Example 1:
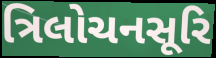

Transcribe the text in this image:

ત્રિલોચનસૂરિ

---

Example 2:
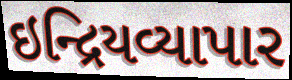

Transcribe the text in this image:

ઇન્દ્રિયવ્યાપાર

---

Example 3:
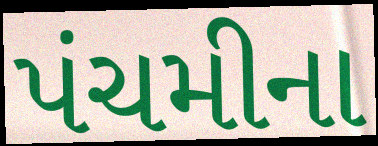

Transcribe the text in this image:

પંચમીના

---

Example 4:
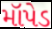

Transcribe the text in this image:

મૉપેડ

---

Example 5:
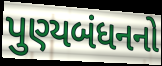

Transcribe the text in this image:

પુણ્યબંધનનો